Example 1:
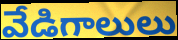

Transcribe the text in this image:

వేడిగాలులు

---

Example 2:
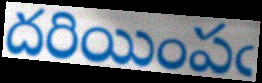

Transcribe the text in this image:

దరియింపఁ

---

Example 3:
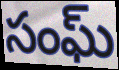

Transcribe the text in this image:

సంఘ్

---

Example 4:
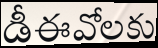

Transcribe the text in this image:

డీఈవోలకు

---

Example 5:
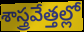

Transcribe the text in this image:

శాస్త్రవేత్తల్లో